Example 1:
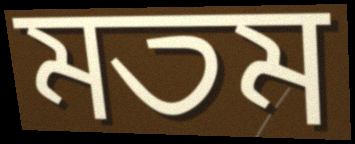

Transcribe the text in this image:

মতম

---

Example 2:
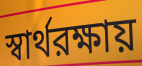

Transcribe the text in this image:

স্বার্থরক্ষায়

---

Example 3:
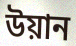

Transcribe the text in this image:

উয়ান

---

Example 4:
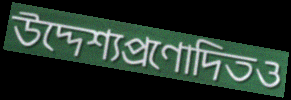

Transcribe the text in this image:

উদ্দেশ্যপ্রণোদিতও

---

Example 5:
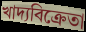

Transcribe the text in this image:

খাদ্যবিক্রেতা